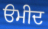
ੳਮੀਦ